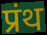
प्रंथ